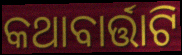
କଥାବାର୍ତ୍ତାଟି